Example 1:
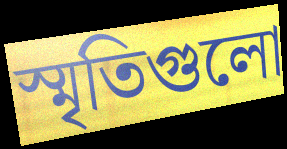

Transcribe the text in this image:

স্মৃতিগুলো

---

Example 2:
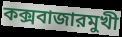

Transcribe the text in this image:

কক্সবাজারমুখী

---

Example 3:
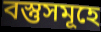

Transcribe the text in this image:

বস্তুসমূহে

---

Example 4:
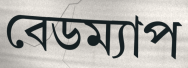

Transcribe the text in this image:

বেডম্যাপ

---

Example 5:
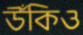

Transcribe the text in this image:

উঁকিও